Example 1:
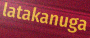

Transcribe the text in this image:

latakanuga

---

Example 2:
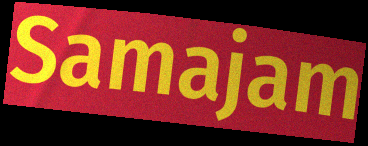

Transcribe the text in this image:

Samajam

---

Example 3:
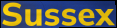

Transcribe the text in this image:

Sussex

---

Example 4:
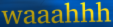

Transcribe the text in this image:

waaahhh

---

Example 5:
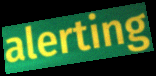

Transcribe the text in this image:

alerting